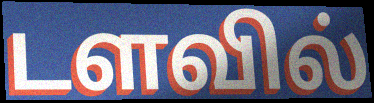
டளவில்